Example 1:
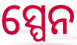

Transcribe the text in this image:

ସ୍ପେନ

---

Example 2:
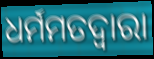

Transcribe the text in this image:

ଧର୍ମମତଦ୍ୱାରା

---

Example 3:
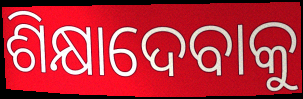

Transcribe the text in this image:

ଶିକ୍ଷାଦେବାକୁ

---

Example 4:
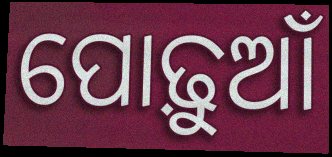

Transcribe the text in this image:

ପୋଢ଼ୁଆଁ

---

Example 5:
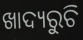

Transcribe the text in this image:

ଖାଦ୍ୟରୁଚି